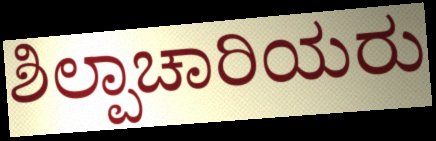
ಶಿಲ್ಪಾಚಾರಿಯರು